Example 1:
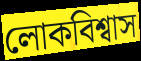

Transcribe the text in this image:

লোকবিশ্বাস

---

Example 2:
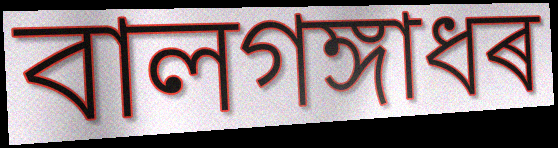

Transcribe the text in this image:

বালগঙ্গাধৰ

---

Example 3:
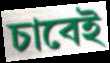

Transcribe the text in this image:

চাবেই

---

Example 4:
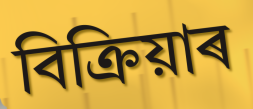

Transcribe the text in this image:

বিক্ৰিয়াৰ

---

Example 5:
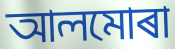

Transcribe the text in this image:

আলমোৰা